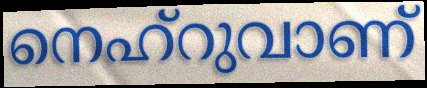
നെഹ്റുവാണ്